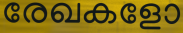
രേഖകളോ